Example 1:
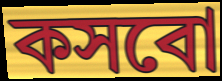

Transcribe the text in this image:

কসবো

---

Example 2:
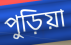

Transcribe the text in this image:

পুড়িয়া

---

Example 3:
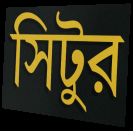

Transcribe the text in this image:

সিটুর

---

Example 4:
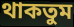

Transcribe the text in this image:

থাকতুম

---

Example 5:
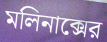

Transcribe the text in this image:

মলিনাক্সের